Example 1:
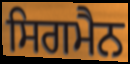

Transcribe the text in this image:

ਸਿਗਮੈਨ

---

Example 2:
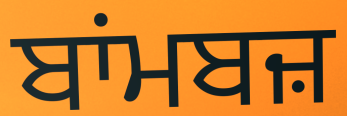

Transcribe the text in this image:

ਬਾਂਮਬਜ਼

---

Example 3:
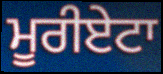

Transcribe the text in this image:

ਮੂਰੀਏਟਾ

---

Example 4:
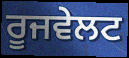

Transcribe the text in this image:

ਰੂਜਵੇਲਟ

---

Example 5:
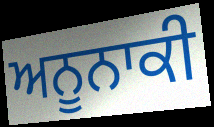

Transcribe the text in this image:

ਅਨੂਨਾਕੀ